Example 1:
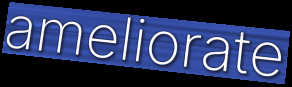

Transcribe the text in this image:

ameliorate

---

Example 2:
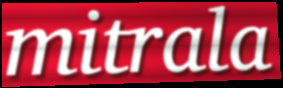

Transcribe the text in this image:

mitrala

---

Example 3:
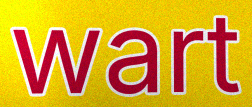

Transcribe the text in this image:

wart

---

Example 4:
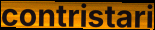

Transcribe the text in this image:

contristari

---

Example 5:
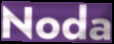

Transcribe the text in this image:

Noda